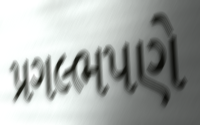
પ્રગલ્ભપણે